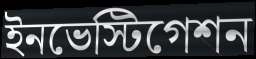
ইনভেস্টিগেশন